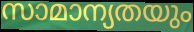
സാമാന്യതയും